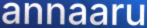
annaaru